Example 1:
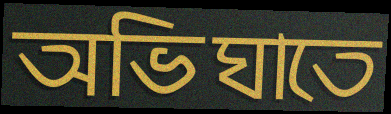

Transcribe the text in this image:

অভিঘাতে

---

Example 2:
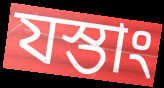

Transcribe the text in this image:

যস্তাং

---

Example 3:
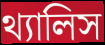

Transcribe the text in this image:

থ্যালিস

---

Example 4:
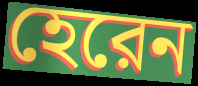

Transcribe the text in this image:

হেরেন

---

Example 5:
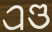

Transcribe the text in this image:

এণ্ড